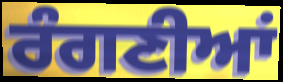
ਰੰਗਣੀਆਂ